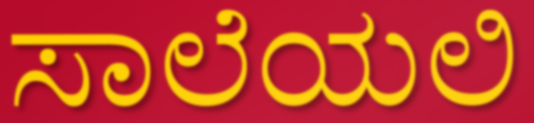
ಸಾಲೆಯಲಿ